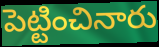
పెట్టించినారు